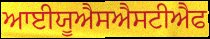
ਆਈਯੂਐਸਐਸਟੀਐਫ